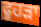
ਫੂਹੜਾ